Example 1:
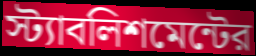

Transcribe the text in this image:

স্ট্যাবলিশমেন্টের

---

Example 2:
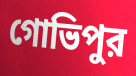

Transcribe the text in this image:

গোভিপুর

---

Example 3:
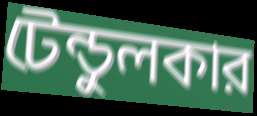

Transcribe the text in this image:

টেন্ডুলকার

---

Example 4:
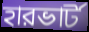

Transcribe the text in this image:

হারভার্ট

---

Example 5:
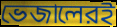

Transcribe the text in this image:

ভেজালেরই